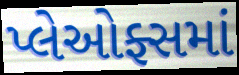
પ્લેઓફ્સમાં